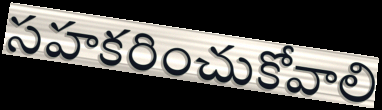
సహకరించుకోవాలి